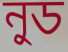
নুড